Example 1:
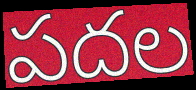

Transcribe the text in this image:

పదల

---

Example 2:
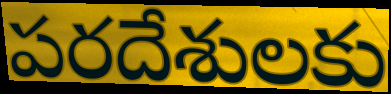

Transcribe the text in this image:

పరదేశులకు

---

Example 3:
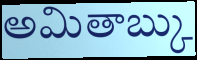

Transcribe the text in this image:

అమితాబ్కు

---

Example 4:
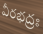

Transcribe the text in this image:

వీరభద్రః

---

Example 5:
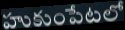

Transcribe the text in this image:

హుకుంపేటలో